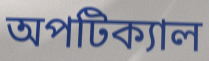
অপটিক্যাল